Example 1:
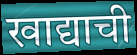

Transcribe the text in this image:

खाद्याची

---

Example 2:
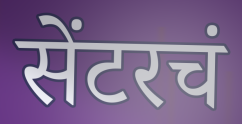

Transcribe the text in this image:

सेंटरचं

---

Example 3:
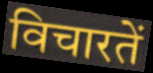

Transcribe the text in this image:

विचारतें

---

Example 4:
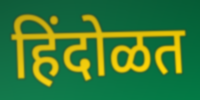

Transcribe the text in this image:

हिंदोळत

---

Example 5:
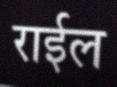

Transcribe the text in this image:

राईल